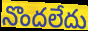
నొందలేదు